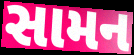
સામન